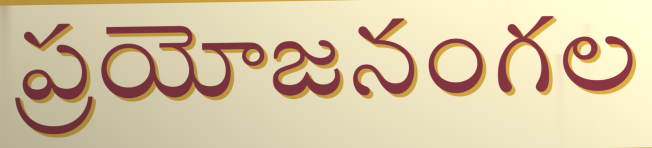
ప్రయోజనంగల